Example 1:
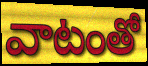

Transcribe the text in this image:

వాటంతో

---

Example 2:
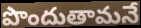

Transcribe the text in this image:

పొందుతామనే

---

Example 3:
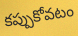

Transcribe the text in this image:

కప్పుకోవటం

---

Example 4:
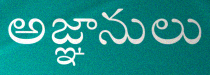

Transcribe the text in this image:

అజ్ఞానులు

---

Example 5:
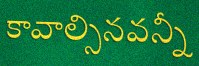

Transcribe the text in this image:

కావాల్సినవన్నీ